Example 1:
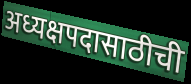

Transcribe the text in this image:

अध्यक्षपदासाठीची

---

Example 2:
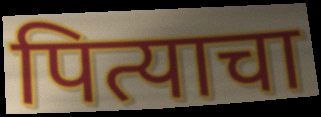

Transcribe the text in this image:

पित्याचा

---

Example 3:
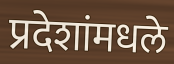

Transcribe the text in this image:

प्रदेशांमधले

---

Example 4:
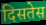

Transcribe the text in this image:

दिसतेस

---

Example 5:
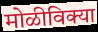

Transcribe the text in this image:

मोळीविक्या